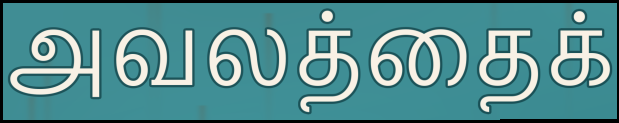
அவலத்தைக்